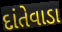
દાંતેવાડા